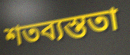
শতব্যস্ততা